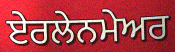
ਏਰਲੇਨਮੇਅਰ